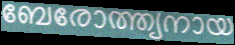
ബേരോത്ത്യനായ